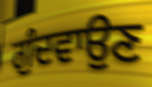
ਗੁੰਦਵਾਉਣ